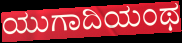
ಯುಗಾದಿಯಂಥ